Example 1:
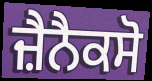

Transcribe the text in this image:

ਜ਼ੈਨੈਕਸੋ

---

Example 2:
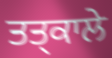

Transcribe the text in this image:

ਤਤ੍ਕਾਲੇ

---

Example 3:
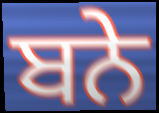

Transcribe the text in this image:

ਬਨੇ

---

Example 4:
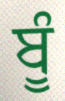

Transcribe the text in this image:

ਬੂੰ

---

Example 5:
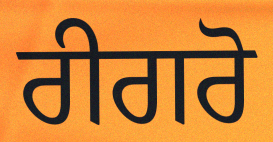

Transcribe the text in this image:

ਰੀਗਰੋ